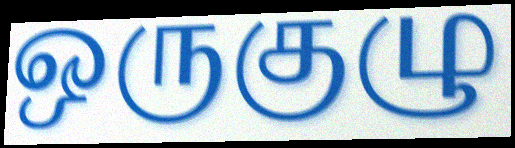
ஒருகுழு